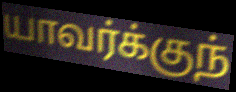
யாவர்க்குந்